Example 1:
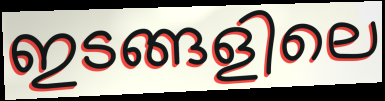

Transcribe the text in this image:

ഇടങ്ങളിലെ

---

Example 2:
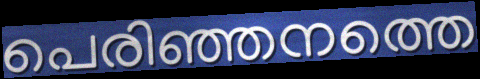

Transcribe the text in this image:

പെരിഞ്ഞനത്തെ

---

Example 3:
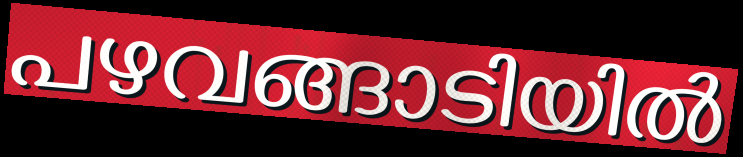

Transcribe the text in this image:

പഴവങ്ങാടിയിൽ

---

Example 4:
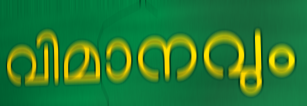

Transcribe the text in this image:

വിമാനവും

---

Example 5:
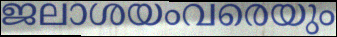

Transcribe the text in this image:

ജലാശയംവരെയും